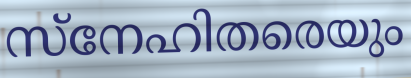
സ്നേഹിതരെയും